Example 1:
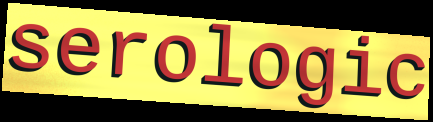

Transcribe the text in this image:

serologic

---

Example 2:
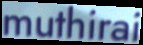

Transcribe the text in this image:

muthirai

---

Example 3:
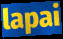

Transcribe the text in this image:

lapai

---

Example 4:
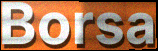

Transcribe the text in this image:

Borsa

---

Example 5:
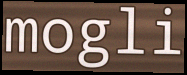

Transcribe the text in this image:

mogli